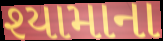
શ્યામાના